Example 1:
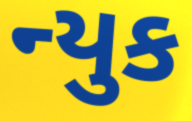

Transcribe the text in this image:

ન્યુક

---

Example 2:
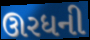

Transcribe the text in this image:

ઊરધની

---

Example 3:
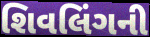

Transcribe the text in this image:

શિવલિંગની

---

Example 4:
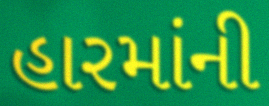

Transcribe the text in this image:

હારમાંની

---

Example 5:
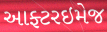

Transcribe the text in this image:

આફ્ટરઇમેજ